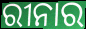
ରୀନାର